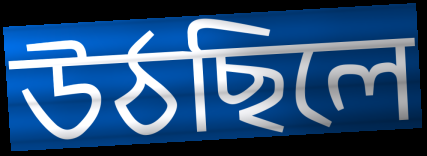
উঠছিলে